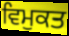
ਵਿਮੁਕਤ